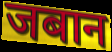
जबान